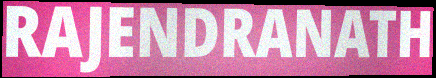
RAJENDRANATH